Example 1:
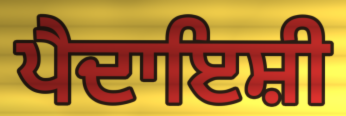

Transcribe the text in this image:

ਪੈਦਾਇਸ਼ੀ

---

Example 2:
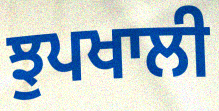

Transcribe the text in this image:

ਝੁਪਖਾਲੀ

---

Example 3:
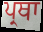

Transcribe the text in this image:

ਪ੍ਰਥਾ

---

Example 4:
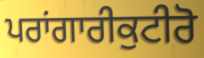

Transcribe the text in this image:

ਪਰਾਂਗਾਰੀਕੁਟੀਰੋ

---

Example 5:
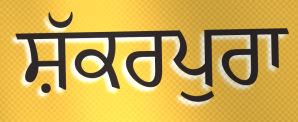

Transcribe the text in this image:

ਸ਼ੱਕਰਪੁਰਾ